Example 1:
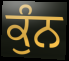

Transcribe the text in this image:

ਕੁੰਨ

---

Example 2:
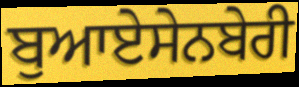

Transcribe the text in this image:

ਬੁਆਏਸੇਨਬੇਰੀ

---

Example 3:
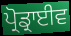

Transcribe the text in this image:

ਪ੍ਰੋਡ੍ਰਾਈਵ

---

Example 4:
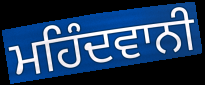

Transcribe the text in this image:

ਮਹਿੰਦਵਾਨੀ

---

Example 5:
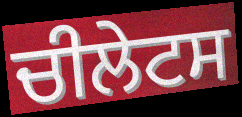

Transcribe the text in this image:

ਚੀਲੇਟਸ